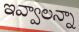
ఇవ్వాలన్నా